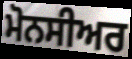
ਮੋਨਸੀਅਰ